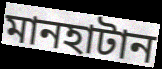
মানহাটান